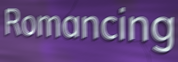
Romancing